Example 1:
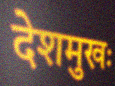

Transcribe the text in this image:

देशमुखः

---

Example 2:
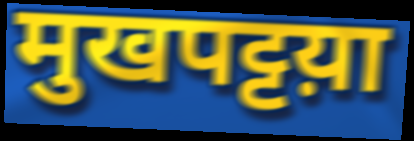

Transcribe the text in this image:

मुखपट्टय़ा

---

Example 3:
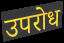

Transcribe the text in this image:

उपरोध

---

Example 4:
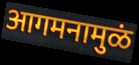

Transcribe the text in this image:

आगमनामुळं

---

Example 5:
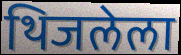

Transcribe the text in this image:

थिजलेला